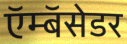
ऍम्बॅसेडर